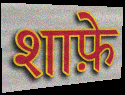
शाफ़े